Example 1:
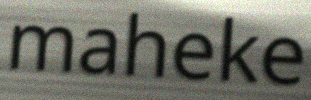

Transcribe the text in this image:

maheke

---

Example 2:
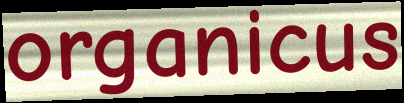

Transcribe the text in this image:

organicus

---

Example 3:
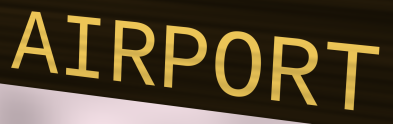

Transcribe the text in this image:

AIRPORT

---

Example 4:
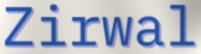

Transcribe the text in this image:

Zirwal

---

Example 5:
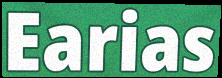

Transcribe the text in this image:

Earias